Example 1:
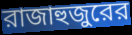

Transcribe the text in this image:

রাজাহুজুরের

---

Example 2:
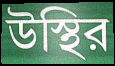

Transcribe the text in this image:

উস্থির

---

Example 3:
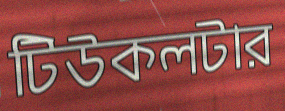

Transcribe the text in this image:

টিউকলটার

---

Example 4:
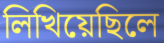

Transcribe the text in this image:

লিখিয়েছিলে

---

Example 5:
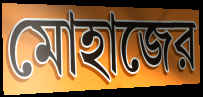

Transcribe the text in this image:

মোহাজের